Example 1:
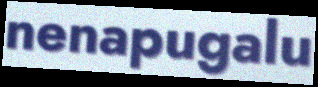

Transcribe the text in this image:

nenapugalu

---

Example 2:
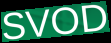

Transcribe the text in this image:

SVOD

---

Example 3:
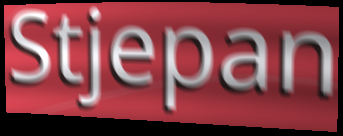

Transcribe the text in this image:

Stjepan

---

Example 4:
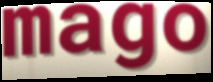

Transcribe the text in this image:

mago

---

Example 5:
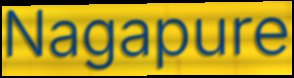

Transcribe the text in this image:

Nagapure